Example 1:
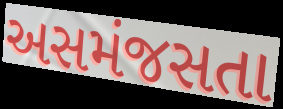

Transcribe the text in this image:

અસમંજસતા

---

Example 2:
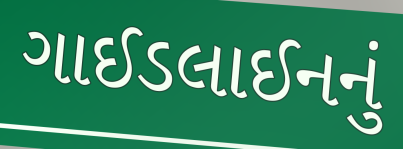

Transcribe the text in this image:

ગાઈડલાઈનનું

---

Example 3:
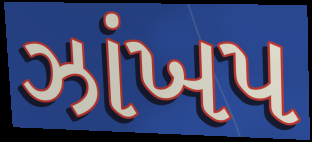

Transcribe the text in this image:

ઝાંખપ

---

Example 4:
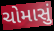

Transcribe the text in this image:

ચોમાસું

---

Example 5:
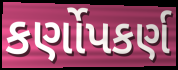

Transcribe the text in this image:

કર્ણોપકર્ણ